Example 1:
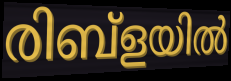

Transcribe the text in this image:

രിബ്ളയിൽ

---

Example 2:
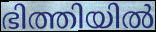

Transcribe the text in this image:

ഭിത്തിയിൽ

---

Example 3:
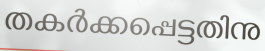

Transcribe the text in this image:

തകർക്കപ്പെട്ടതിനു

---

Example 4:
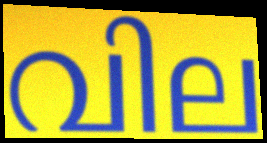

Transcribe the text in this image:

വില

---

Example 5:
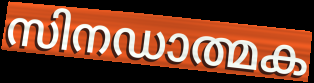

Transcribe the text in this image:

സിനഡാത്മക